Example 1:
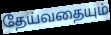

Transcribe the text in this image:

தேய்வதையும்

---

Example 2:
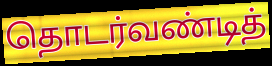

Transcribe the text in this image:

தொடர்வண்டித்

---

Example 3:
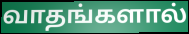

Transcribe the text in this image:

வாதங்களால்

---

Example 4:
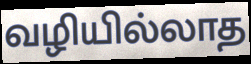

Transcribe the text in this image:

வழியில்லாத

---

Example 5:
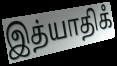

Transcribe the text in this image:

இத்யாதிகஂ